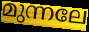
മുന്നലേ